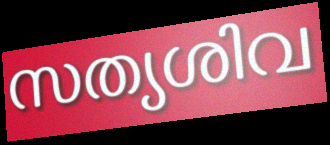
സത്യശിവ